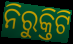
ନିରୁକ୍ତିଟି